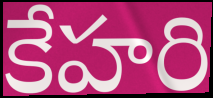
కేహరి